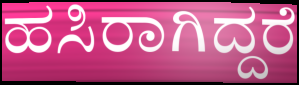
ಹಸಿರಾಗಿದ್ದರೆ